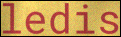
ledis